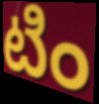
టిం